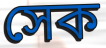
সেক